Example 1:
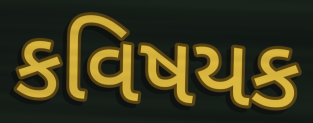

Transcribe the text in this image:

કવિષયક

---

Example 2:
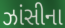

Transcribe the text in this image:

ઝાંસીના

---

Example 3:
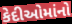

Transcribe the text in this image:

કેદીઓમાંનો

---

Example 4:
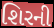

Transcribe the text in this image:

શિરની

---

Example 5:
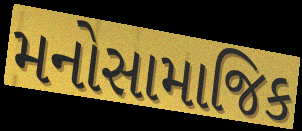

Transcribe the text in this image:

મનોસામાજિક